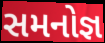
સમનોજ્ઞ